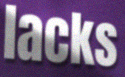
lacks